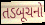
તડબૂચનો